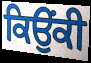
ਕਿਉਂਕੀ